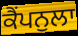
ਕੈਂਪਨੁਲਾ